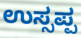
ಉಸ್ಸಪ್ಪ